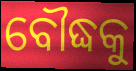
ବୌଦ୍ଧକୁ